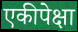
एकीपेक्षा